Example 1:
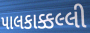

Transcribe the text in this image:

પાલકાક્કલ્લી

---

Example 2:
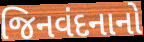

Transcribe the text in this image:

જિનવંદનાનો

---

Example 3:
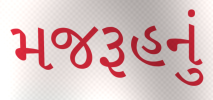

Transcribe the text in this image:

મજરૂહનું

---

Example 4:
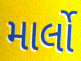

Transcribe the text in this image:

માર્લો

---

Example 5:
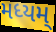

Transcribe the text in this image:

મધ્યમ્